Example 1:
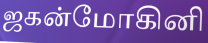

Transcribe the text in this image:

ஜகன்மோகினி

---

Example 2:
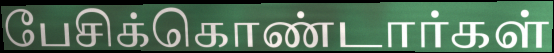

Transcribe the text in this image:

பேசிக்கொண்டார்கள்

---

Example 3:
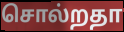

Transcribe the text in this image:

சொல்றதா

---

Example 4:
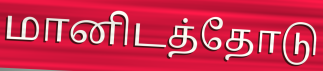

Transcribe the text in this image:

மானிடத்தோடு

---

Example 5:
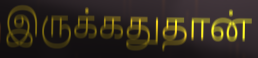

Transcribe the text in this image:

இருக்கதுதான்